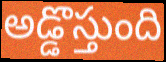
అడ్డొస్తుంది